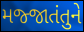
મજ્જાતંતુને